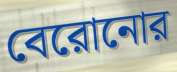
বেরোনোর